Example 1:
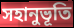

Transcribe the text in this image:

সহানুভূতি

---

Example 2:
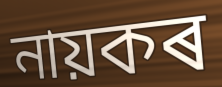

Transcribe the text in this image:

নায়কৰ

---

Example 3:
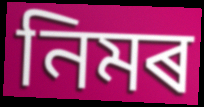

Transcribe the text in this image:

নিমৰ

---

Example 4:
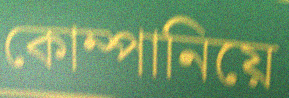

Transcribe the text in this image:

কোম্পানিয়ে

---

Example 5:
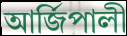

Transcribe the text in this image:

আৰ্জিপালী